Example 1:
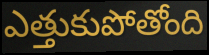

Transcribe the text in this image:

ఎత్తుకుపోతోంది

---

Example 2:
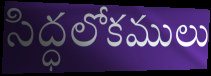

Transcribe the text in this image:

సిద్ధలోకములు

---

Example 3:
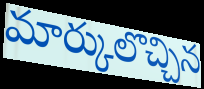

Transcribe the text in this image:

మార్కులొచ్చిన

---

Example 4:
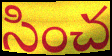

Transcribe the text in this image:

సించ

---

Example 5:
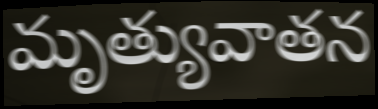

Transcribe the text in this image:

మృత్యువాతన